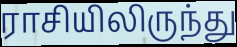
ராசியிலிருந்து